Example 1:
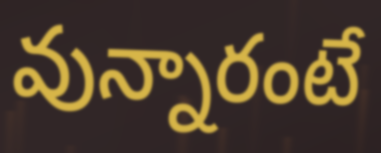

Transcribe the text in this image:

వున్నారంటే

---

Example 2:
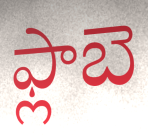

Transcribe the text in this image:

ఫ్లాబె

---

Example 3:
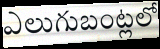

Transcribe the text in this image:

ఎలుగుబంట్లలో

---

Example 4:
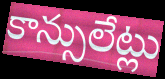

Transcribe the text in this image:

కాన్సులేట్లు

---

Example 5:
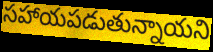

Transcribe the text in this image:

సహాయపడుతున్నాయని